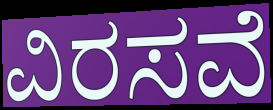
ವಿರಸವೆ